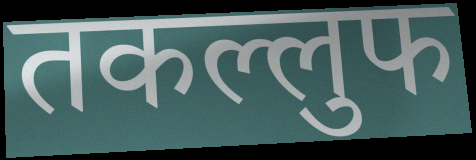
तकल्लुफ